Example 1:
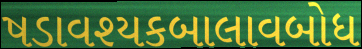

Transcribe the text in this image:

ષડાવશ્યકબાલાવબોધ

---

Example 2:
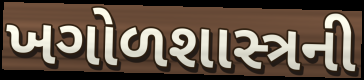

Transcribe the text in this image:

ખગોળશાસ્ત્રની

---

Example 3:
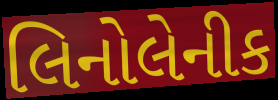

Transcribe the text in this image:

લિનોલેનીક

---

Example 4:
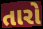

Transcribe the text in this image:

તારો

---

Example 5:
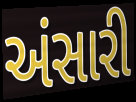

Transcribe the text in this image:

અંસારી